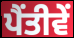
ਪੈਂਤੀਵੇਂ